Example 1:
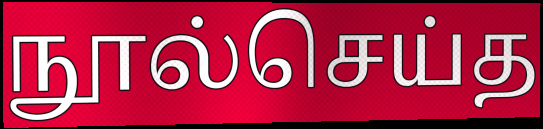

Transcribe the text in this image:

நூல்செய்த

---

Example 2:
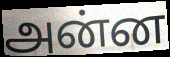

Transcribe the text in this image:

அன்ன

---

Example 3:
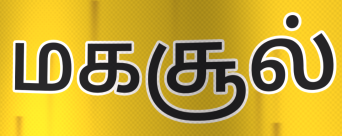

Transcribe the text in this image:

மகசூல்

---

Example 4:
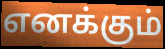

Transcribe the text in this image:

எனக்கும்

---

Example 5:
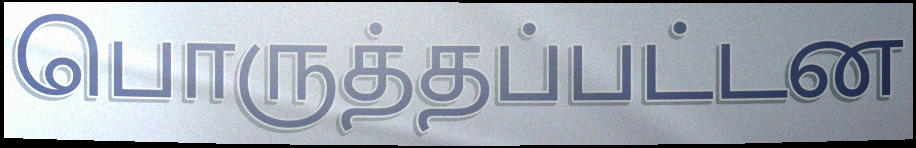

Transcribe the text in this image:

பொருத்தப்பட்டன